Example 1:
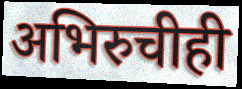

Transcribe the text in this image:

अभिरुचीही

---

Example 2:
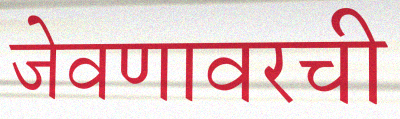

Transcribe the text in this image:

जेवणावरची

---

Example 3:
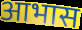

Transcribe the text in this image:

आभास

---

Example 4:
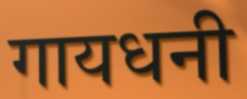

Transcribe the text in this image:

गायधनी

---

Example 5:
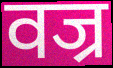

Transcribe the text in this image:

वज्र